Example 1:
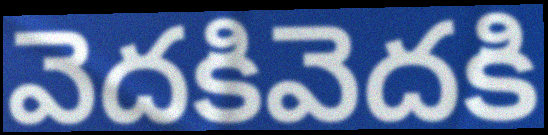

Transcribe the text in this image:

వెదకివెదకి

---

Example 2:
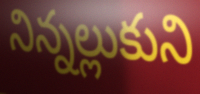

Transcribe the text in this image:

నిన్నల్లుకుని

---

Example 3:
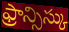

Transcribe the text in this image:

ఫ్రాన్సిస్కు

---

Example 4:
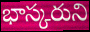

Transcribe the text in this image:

భాస్కరుని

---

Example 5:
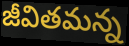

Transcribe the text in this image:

జీవితమన్న